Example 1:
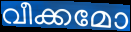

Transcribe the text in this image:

വീക്കമോ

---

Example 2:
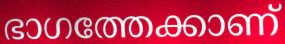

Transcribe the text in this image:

ഭാഗത്തേക്കാണ്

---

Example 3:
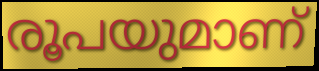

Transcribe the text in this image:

രൂപയുമാണ്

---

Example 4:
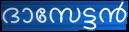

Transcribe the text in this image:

ദാസേട്ടൻ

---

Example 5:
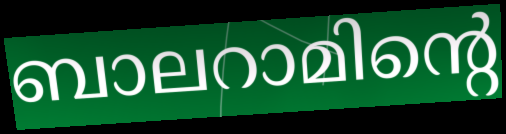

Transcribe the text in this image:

ബാലറാമിന്റെ